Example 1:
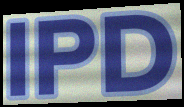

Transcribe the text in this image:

IPD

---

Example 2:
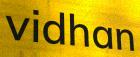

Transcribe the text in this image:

vidhan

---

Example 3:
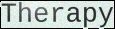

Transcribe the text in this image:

Therapy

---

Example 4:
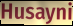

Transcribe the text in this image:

Husayni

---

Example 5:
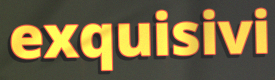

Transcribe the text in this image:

exquisivi